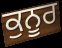
ਕੁਨੂਰ